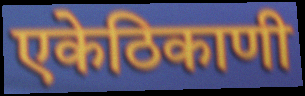
एकेठिकाणी